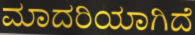
ಮಾದರಿಯಾಗಿದೆ